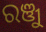
ରଞ୍ଜୁ